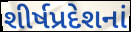
શીર્ષપ્રદેશનાં